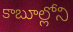
కాబూల్లోని